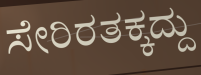
ಸೇರಿರತಕ್ಕದ್ದು